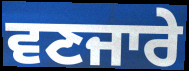
ਵਣਜਾਰੇ